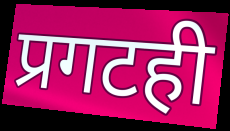
प्रगटही